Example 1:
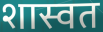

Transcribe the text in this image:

शास्वत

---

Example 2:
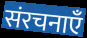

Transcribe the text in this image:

संरचनाएँ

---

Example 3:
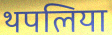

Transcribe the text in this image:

थपलिया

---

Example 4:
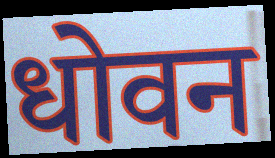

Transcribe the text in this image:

धोवन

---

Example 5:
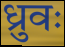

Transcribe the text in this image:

ध्रुवः